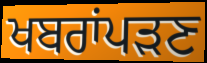
ਖਬਰਾਂਪੜਣ